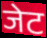
जेट